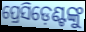
ପ୍ରେସିଡ଼େଣ୍ଟଙ୍କୁ